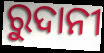
ରୁଦାନୀ